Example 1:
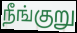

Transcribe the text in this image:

நீங்குறு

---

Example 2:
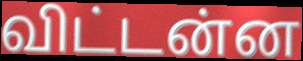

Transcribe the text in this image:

விட்டன்ன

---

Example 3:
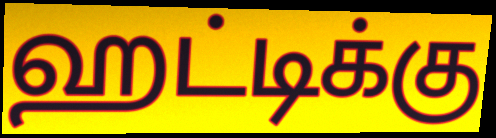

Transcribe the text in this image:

ஹட்டிக்கு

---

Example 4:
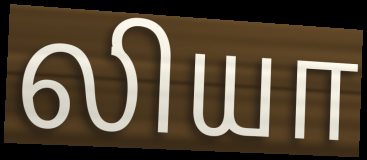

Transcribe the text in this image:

லியா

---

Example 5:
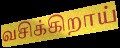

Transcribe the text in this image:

வசிக்கிறாய்